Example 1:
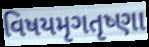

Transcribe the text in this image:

વિષયમૃગતૃષ્ણા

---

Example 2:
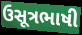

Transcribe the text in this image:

ઉસૂત્રભાષી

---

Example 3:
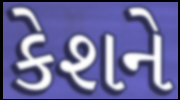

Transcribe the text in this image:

કેશને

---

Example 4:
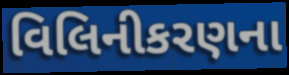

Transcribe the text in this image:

વિલિનીકરણના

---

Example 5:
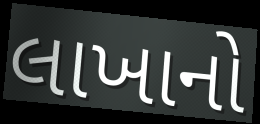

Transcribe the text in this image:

લાખાનો